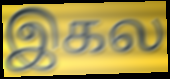
இகல